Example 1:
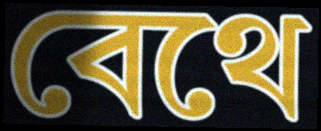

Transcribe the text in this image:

বেথে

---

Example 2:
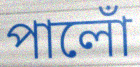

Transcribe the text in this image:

পালোঁ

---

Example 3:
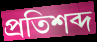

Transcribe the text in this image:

প্ৰতিশব্দ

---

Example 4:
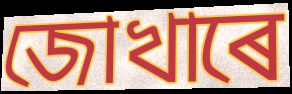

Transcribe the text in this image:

জোখাৰে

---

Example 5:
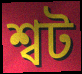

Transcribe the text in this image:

শ্বট